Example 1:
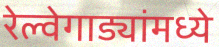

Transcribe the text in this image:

रेल्वेगाड्यांमध्ये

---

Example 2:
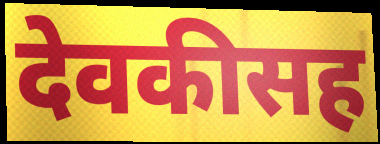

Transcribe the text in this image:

देवकीसह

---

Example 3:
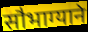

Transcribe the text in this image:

सौभाग्याने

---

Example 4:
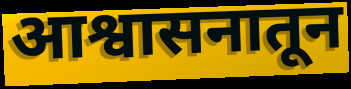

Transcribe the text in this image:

आश्वासनातून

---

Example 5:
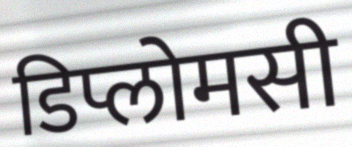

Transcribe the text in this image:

डिप्लोमसी